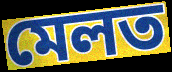
মেলত